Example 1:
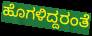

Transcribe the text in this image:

ಹೊಗಳಿದ್ದರಂತೆ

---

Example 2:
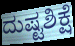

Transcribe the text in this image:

ದುಷ್ಟಶಿಕ್ಷೆ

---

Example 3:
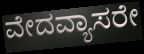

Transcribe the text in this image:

ವೇದವ್ಯಾಸರೇ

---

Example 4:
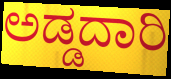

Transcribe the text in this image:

ಅಡ್ಡದಾರಿ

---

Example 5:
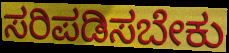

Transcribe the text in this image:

ಸರಿಪಡಿಸಬೇಕು